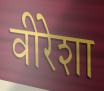
वीरेशा